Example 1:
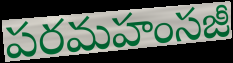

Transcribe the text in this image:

పరమహంసజీ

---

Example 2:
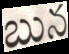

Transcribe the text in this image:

బున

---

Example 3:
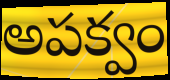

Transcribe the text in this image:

అపక్వం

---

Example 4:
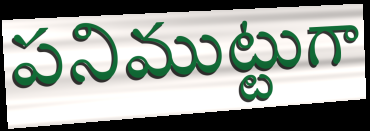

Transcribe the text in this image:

పనిముట్టుగా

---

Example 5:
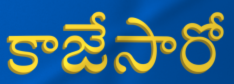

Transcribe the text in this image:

కాజేసారో